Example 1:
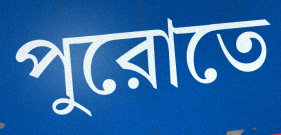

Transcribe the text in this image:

পুরোতে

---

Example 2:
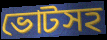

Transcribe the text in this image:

ভোটসহ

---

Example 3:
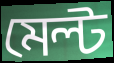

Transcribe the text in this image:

মেল্ট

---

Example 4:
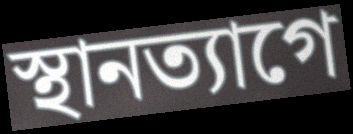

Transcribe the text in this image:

স্থানত্যাগে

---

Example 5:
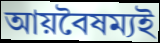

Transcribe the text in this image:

আয়বৈষম্যই